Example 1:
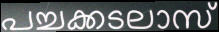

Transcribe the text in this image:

പച്ചക്കടലാസ്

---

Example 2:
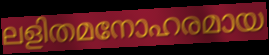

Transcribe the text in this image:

ലളിതമനോഹരമായ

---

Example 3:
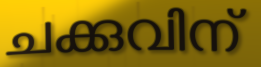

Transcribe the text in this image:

ചക്കുവിന്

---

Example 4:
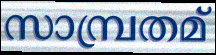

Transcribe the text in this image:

സാമ്പ്രതമ്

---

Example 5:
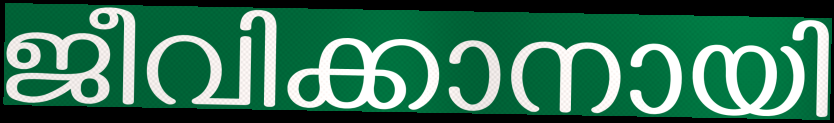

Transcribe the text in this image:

ജീവിക്കാനായി